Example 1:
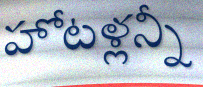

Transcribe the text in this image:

హోటళ్లన్నీ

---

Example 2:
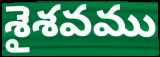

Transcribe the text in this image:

శైశవము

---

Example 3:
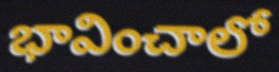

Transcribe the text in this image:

భావించాలో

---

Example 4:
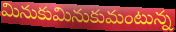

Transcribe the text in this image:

మినుకుమినుకుమంటున్న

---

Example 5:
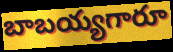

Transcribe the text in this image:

బాబయ్యగారూ